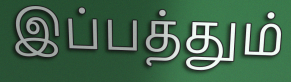
இப்பத்தும்